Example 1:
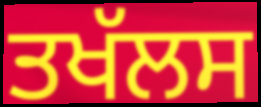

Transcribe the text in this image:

ਤਖੱਲਸ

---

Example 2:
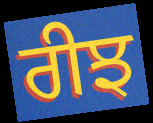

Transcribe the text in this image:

ਰੀਝ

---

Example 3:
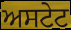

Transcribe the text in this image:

ਅਸਟੇਟ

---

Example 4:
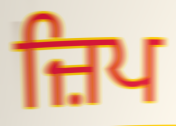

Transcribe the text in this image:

ਜ਼ਿਪ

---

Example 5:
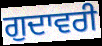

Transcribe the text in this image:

ਗੁਦਾਵਰੀ